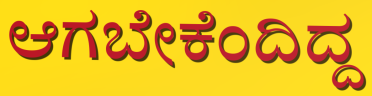
ಆಗಬೇಕೆಂದಿದ್ದ